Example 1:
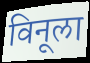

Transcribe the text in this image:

विनूला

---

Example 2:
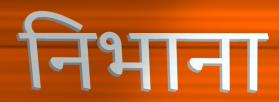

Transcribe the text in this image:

निभाना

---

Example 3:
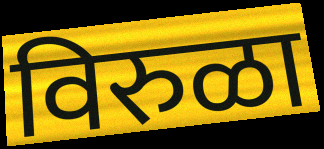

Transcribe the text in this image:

विरुळा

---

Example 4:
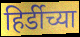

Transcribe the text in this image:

हिर्डीच्या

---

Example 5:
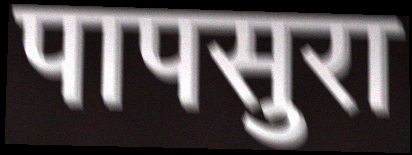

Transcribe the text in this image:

पापसुरा